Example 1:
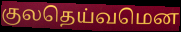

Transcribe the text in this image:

குலதெய்வமென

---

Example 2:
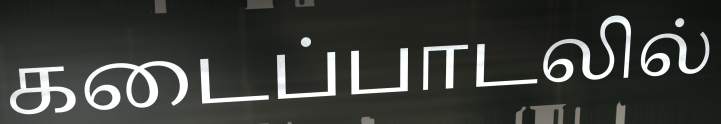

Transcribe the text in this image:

கடைப்பாடலில்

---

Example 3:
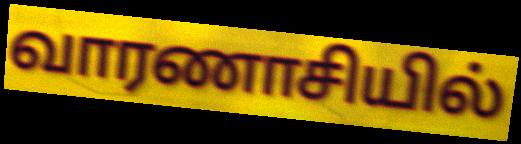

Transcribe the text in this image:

வாரணாசியில்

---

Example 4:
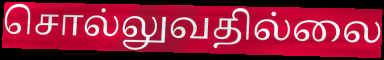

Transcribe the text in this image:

சொல்லுவதில்லை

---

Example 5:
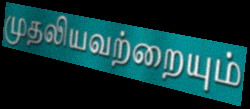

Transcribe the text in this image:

முதலியவற்றையும்